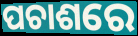
ପଚାଶରେ